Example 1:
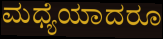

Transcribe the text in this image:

ಮಧ್ಯೆಯಾದರೂ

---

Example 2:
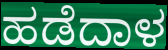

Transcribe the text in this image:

ಹಡೆದಾಳ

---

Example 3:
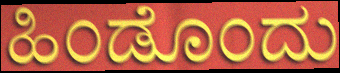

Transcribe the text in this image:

ಹಿಂಡೊಂದು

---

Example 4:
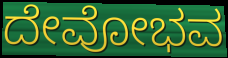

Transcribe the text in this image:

ದೇವೋಭವ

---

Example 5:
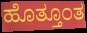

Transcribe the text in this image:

ಹೊತ್ತೂಂತ